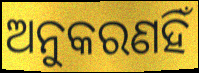
ଅନୁକରଣହିଁ